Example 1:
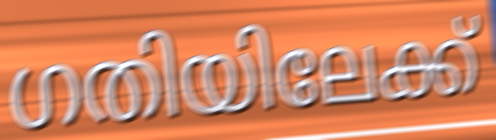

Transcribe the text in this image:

ഗതിയിലേക്ക്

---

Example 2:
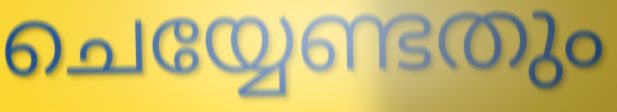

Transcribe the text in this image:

ചെയ്യേണ്ടതും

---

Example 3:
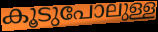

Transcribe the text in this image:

കൂടുപോലുള്ള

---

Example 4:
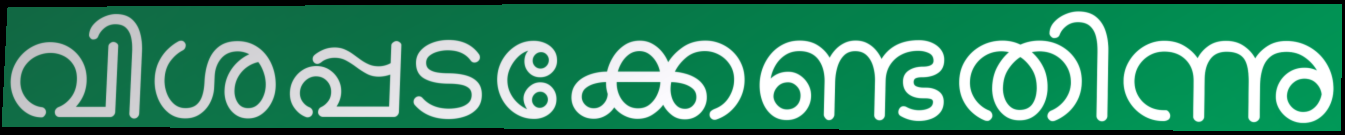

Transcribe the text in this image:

വിശപ്പടക്കേണ്ടതിന്നു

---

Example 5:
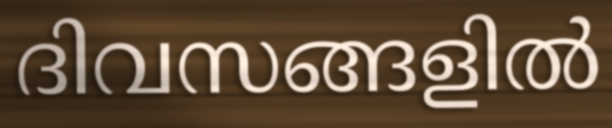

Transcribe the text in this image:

ദിവസങ്ങളിൽ